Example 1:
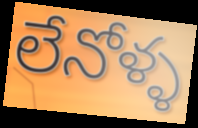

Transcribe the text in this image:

లేనోళ్ళ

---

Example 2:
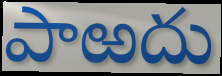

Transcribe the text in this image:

పాఱదు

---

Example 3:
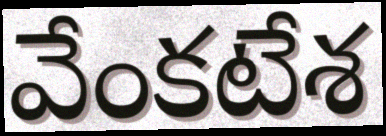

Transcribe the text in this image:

వేంకటేశ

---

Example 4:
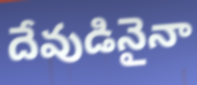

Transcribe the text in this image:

దేవుడినైనా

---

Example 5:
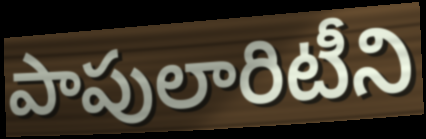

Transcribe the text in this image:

పాపులారిటీని